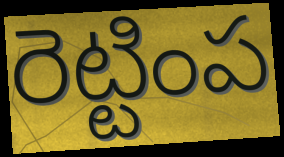
రెట్టింప